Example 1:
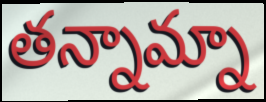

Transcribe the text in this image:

తన్నామ్నా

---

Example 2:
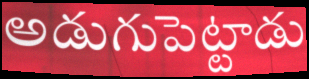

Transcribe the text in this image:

అడుగుపెట్టాడు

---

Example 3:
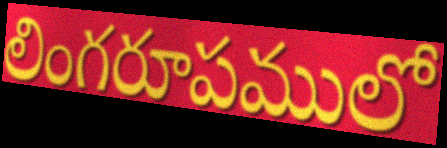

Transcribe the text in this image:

లింగరూపములో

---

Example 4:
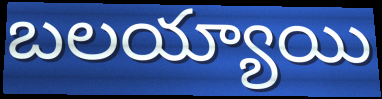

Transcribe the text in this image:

బలయ్యాయి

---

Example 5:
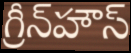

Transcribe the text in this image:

గ్రీన్‌హౌస్